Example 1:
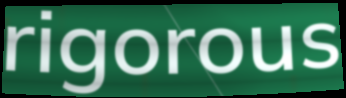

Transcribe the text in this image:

rigorous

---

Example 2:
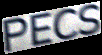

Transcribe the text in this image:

PECS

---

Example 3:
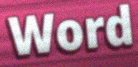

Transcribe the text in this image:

Word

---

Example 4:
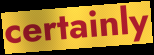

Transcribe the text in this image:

certainly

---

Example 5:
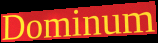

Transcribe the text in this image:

Dominum